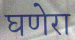
घणेरा